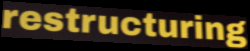
restructuring